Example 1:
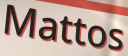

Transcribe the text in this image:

Mattos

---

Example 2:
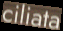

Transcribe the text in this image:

ciliata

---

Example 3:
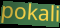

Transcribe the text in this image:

pokali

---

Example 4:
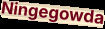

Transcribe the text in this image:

Ningegowda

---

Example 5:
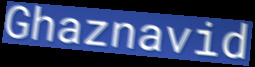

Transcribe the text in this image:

Ghaznavid